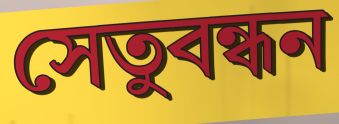
সেতুবন্ধন